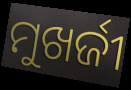
ମୁଖର୍ଜୀ